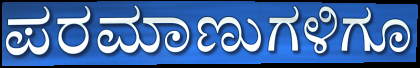
ಪರಮಾಣುಗಳಿಗೂ